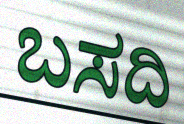
ಬಸದಿ